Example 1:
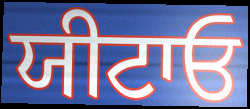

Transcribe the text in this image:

ਯੀਟਾਓ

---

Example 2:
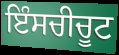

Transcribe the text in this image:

ਇੰਸਚੀਚੂਟ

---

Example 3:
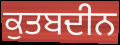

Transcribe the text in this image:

ਕੁਤਬਦੀਨ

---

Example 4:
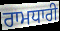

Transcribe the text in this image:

ਰਾਮਧਾਰੀ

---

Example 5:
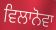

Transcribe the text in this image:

ਵਿਲਾਨੋਵਾ